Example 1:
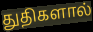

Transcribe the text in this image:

துதிகளால்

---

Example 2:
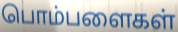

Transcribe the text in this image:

பொம்பளைகள்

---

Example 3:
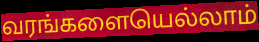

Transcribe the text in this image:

வரங்களையெல்லாம்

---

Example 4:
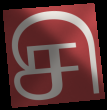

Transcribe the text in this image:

சி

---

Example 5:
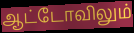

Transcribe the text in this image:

ஆட்டோவிலும்